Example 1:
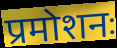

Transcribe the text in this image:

प्रमोशनः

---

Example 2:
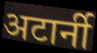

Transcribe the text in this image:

अटार्नी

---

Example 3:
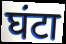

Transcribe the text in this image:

घंटा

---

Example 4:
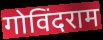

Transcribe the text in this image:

गोविंदराम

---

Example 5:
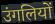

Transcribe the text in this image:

उंगलियों